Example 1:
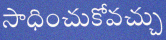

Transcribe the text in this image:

సాధించుకోవచ్చు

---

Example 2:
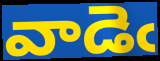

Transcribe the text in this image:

వాడెఁ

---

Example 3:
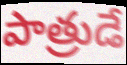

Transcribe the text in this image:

పాత్రుడే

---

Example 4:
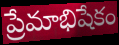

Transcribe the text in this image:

ప్రేమాభిషేకం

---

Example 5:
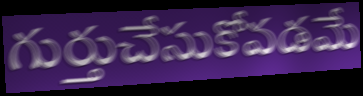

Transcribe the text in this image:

గుర్తుచేసుకోవడమే